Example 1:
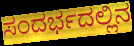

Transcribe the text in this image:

ಸಂದರ್ಭದಲ್ಲಿನ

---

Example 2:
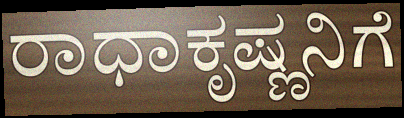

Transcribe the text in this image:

ರಾಧಾಕೃಷ್ಣನಿಗೆ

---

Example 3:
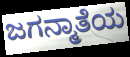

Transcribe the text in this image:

ಜಗನ್ಮಾತೆಯ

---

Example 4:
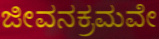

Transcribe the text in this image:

ಜೀವನಕ್ರಮವೇ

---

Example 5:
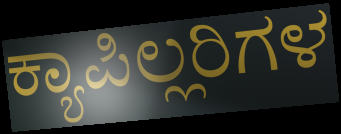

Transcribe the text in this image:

ಕ್ಯಾಪಿಲ್ಲರಿಗಳ